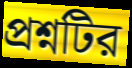
প্রশ্নটির